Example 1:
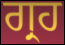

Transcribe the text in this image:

ਗ੍ਰਹ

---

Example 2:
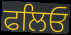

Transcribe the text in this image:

ਫਲਿਓ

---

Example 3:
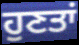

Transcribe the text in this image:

ਹੁਣਤਾਂ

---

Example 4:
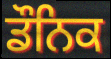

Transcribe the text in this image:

ਡੌਨਿਕ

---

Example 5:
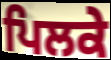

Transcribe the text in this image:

ਪਿਲਕੇ